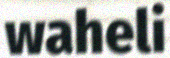
waheli